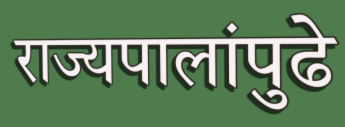
राज्यपालांपुढे